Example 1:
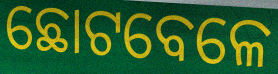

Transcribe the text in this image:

ଛୋଟବେଳେ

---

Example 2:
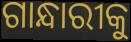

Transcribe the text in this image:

ଗାନ୍ଧାରୀକୁ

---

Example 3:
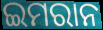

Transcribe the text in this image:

ଇମରାନ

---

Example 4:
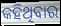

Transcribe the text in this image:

କହିଥିବାର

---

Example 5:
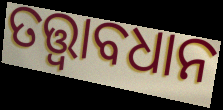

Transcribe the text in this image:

ତତ୍ତ୍ବାବଧାନ